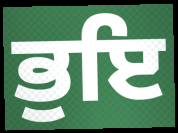
ਭੁਇ